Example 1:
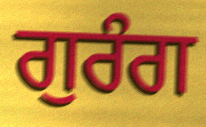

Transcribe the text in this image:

ਗੁਰੰਗ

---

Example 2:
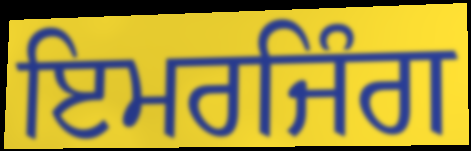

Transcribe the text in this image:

ਇਮਰਜਿੰਗ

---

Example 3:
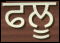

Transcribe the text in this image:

ਫਲੂ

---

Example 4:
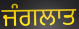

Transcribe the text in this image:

ਜੰਗਲਾਤ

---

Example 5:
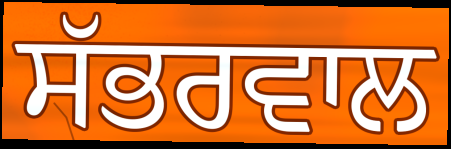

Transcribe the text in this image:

ਸੱਭਰਵਾਲ